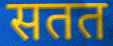
सतत